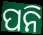
ପନି